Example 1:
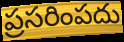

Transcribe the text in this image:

ప్రసరింపదు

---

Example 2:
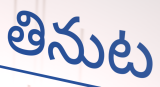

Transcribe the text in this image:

తినుట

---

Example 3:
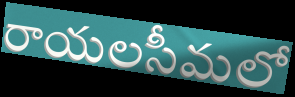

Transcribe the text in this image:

రాయలసీమలో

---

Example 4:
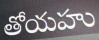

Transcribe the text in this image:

తోయహు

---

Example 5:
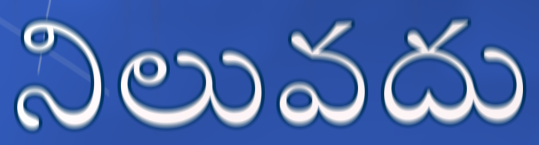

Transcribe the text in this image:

నిలువదు